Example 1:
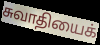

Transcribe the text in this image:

சுவாதியைக்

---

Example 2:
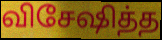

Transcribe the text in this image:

விசேஷித்த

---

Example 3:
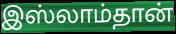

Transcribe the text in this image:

இஸ்லாம்தான்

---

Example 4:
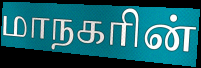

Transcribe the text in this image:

மாநகரின்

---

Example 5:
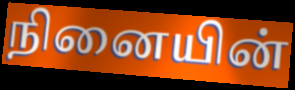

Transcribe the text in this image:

நினையின்